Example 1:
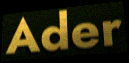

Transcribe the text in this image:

Ader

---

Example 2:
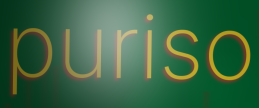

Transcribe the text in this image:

puriso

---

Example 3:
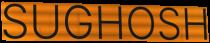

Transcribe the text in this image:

SUGHOSH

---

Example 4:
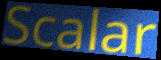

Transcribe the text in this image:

Scalar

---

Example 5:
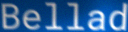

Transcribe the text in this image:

Bellad